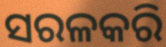
ସରଳକରି